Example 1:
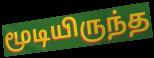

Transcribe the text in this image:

மூடியிருந்த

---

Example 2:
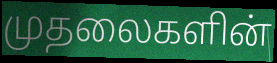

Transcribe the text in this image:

முதலைகளின்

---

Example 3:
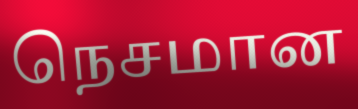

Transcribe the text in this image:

நெசமான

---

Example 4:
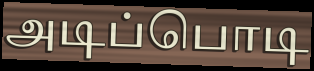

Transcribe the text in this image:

அடிப்பொடி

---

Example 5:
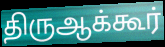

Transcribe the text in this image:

திருஆக்கூர்